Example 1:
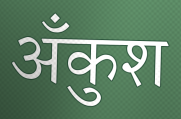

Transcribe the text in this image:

अँकुश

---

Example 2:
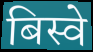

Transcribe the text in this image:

बिस्वे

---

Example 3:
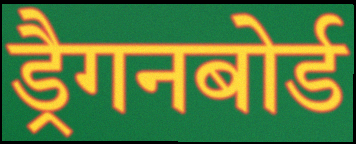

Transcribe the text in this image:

ड्रैगनबोर्ड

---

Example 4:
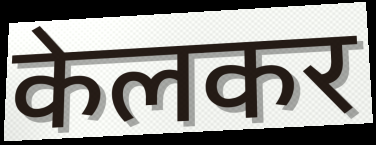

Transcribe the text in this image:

केलकर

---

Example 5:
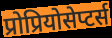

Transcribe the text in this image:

प्रोप्रियोसेप्टर्स